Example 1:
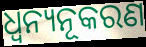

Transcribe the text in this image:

ଧ୍ୱନ୍ୟନୂକରଣ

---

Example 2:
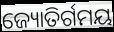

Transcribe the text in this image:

ଜ୍ୟୋତିର୍ଗମୟ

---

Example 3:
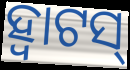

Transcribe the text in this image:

ହ୍ୱାଟସ୍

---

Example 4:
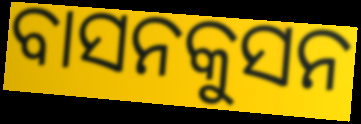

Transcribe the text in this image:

ବାସନକୁସନ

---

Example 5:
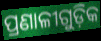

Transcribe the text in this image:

ପ୍ରଣାଳୀଗୁଡ଼ିକ